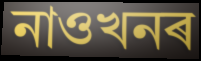
নাওখনৰ